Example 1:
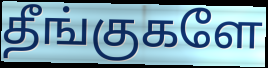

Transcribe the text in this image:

தீங்குகளே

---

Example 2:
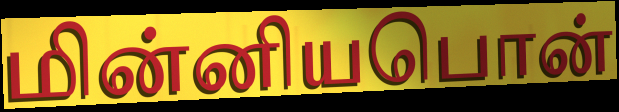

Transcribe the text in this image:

மின்னியபொன்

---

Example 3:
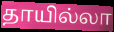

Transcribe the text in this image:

தாயில்லா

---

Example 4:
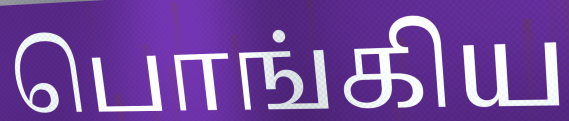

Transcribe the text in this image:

பொங்கிய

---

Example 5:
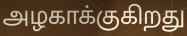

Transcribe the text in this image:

அழகாக்குகிறது